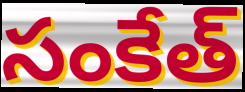
సంకేత్